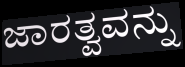
ಜಾರತ್ವವನ್ನು